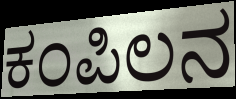
ಕಂಪಿಲನ